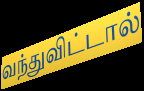
வந்துவிட்டால்